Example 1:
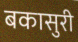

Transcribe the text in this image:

बकासुरी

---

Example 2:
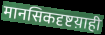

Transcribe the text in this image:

मानसिकदृष्टय़ाही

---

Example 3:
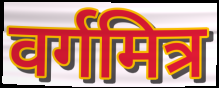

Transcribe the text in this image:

वर्गमित्र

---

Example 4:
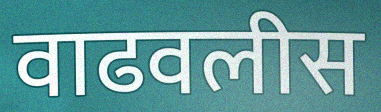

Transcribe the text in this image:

वाढवलीस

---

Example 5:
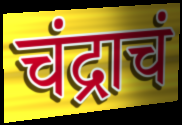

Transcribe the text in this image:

चंद्राचं